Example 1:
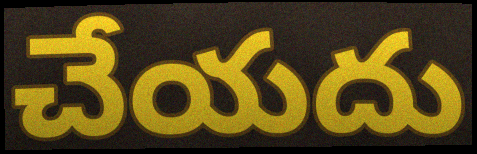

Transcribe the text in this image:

చేయదు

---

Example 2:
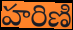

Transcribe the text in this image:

హరిణి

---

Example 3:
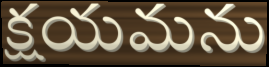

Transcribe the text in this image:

క్షయమను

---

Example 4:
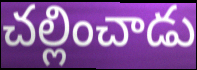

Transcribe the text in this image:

చల్లించాడు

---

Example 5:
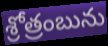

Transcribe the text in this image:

శ్రోత్రంబును